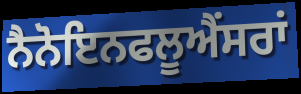
ਨੈਨੋਇਨਫਲੂਐਂਸਰਾਂ